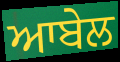
ਆਬੇਲ